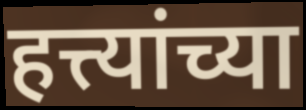
हत्त्यांच्या